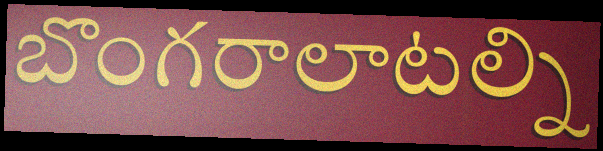
బొంగరాలాటల్ని